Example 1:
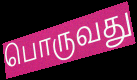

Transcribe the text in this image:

பொருவது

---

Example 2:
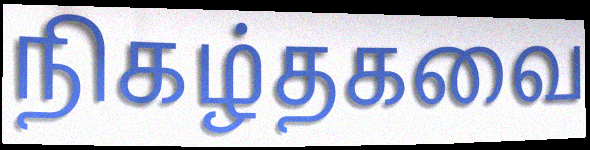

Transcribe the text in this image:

நிகழ்தகவை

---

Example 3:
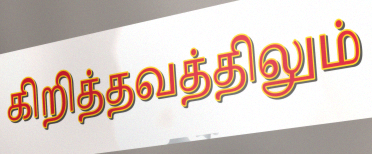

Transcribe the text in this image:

கிறித்தவத்திலும்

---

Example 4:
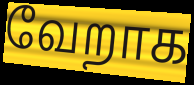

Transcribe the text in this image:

வேறாக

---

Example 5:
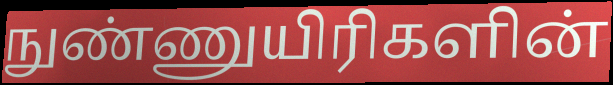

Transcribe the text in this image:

நுண்ணுயிரிகளின்